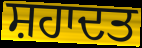
ਸ਼ਹਾਦਤ